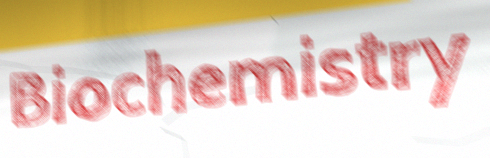
Biochemistry